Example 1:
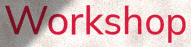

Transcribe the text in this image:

Workshop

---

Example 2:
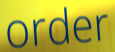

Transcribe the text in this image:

order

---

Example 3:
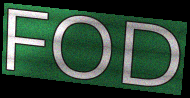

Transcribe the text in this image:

FOD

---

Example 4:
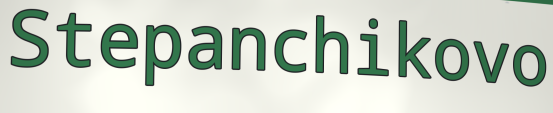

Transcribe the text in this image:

Stepanchikovo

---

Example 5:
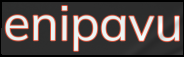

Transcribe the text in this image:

enipavu